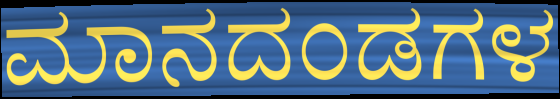
ಮಾನದಂಡಗಳ